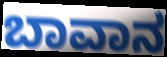
ಬಾವಾನ